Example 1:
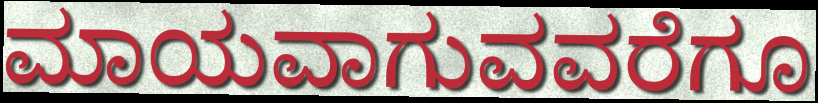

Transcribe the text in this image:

ಮಾಯವಾಗುವವರೆಗೂ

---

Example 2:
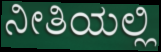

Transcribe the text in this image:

ನೀತಿಯಲ್ಲಿ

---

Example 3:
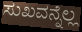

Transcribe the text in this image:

ಸುಖವನ್ನೆಲ್ಲ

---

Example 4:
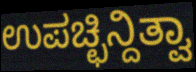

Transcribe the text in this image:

ಉಪಚ್ಛಿನ್ದಿತ್ವಾ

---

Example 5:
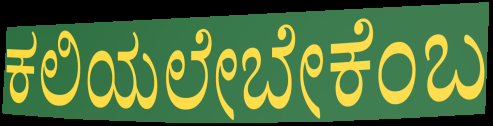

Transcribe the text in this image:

ಕಲಿಯಲೇಬೇಕೆಂಬ